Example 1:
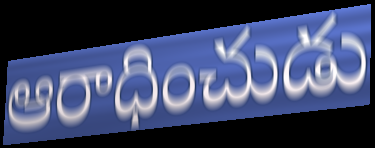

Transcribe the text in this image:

ఆరాధించుడు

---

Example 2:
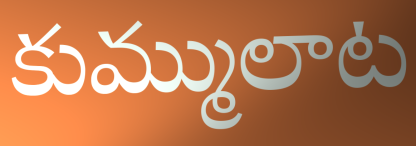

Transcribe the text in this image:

కుమ్ములాట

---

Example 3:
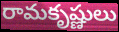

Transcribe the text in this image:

రామకృష్ణులు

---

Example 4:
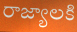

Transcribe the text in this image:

రాజ్యాలకి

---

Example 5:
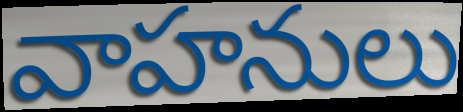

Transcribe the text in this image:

వాహనులు